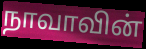
நாவாவின்